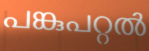
പങ്കുപറ്റൽ